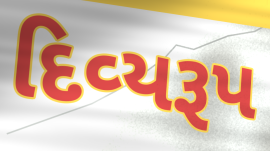
દિવ્‍યરૂપ